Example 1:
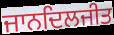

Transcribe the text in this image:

ਜਾਨਦਿਲਜੀਤ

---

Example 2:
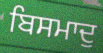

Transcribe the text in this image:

ਬਿਸਮਾਦੁ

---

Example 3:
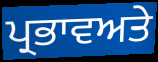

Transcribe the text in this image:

ਪ੍ਰਭਾਵਅਤੇ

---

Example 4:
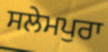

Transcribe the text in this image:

ਸਲੇਮਪੁਰਾ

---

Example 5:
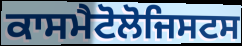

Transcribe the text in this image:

ਕਾਸਮੈਟੋਲੋਜਿਸਟਸ